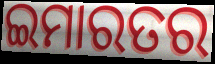
ଇମାରତର